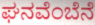
ಘನವೆಂಬೆನೆ